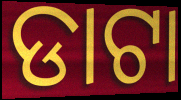
ଡାଟା